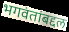
भगवंतांबद्दल